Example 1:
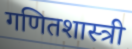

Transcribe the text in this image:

गणितशास्त्री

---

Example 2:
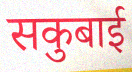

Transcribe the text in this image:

सकुबाई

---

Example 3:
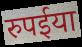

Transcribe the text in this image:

रुपईया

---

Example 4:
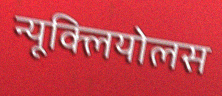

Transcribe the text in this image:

न्यूक्लियोलस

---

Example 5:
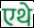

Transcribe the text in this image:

एथे